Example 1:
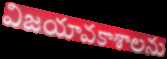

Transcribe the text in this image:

విజయావకాశాలను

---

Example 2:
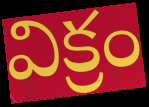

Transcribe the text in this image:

విక్రం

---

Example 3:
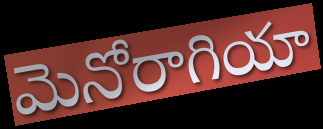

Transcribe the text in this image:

మెనోరాగియా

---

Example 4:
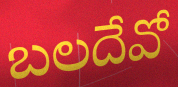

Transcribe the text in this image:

బలదేవో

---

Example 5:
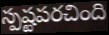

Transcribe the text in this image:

స్పష్టపరచింది